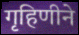
गृहिणीने